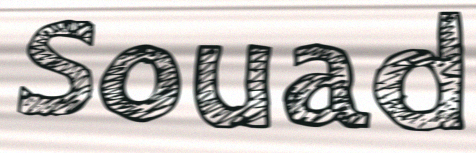
Souad